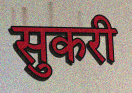
सुकरी